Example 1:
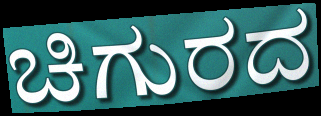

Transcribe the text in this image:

ಚಿಗುರದ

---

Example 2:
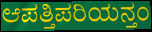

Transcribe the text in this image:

ಆಪತ್ತಿಪರಿಯನ್ತಂ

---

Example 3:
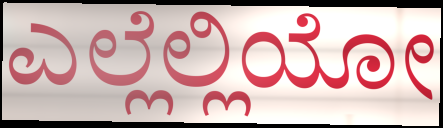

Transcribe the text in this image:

ಎಲ್ಲೆಲ್ಲಿಯೋ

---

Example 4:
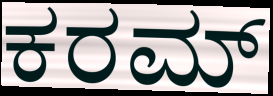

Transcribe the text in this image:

ಕರಮ್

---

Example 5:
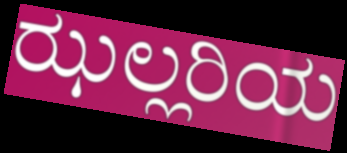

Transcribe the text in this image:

ಝಲ್ಲರಿಯ